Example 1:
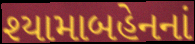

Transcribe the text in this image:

શ્યામાબહેનનાં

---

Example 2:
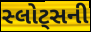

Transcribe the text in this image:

સ્લોટ્સની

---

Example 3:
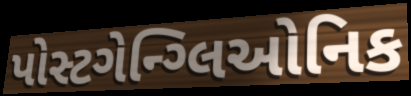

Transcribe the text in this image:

પોસ્ટગેન્ગ્લિઓનિક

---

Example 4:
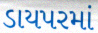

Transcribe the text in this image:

ડાયપરમાં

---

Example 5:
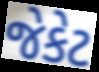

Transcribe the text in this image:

જેકેટ